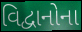
વિદ્વાનોના